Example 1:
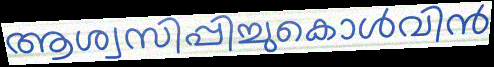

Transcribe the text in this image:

ആശ്വസിപ്പിച്ചുകൊൾവിൻ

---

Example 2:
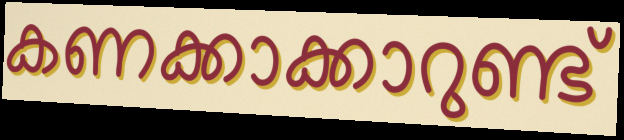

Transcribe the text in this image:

കണക്കാക്കാറുണ്ട്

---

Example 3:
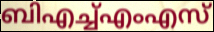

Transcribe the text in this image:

ബിഎച്ച്എംഎസ്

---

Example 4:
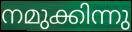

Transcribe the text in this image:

നമുക്കിന്നു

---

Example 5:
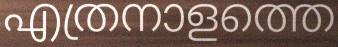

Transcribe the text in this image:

എത്രനാളത്തെ